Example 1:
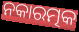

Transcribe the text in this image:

ନକାରତ୍ମକ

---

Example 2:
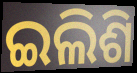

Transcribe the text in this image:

ଇଲିଶି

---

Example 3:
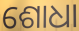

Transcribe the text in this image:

ଶୋଧା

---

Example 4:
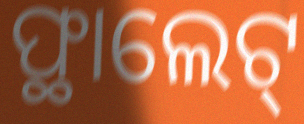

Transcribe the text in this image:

ଫ୍ଥାଲେଟ୍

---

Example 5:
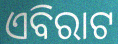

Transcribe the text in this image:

ଏବିରାଟ